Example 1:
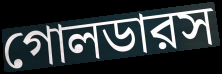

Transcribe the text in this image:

গোলডারস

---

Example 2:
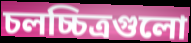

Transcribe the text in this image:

চলচ্চিত্রগুলো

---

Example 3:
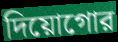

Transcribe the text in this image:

দিয়োগোর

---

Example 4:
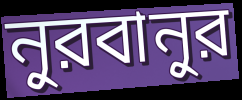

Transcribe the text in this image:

নুরবানুর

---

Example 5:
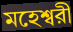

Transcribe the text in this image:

মহেশ্বরী